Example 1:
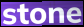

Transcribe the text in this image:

stone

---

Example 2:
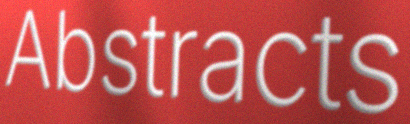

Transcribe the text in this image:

Abstracts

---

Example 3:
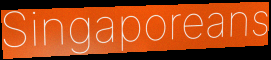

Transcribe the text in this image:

Singaporeans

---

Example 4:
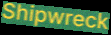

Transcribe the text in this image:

Shipwreck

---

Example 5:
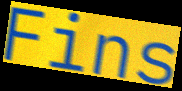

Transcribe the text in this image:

Fins